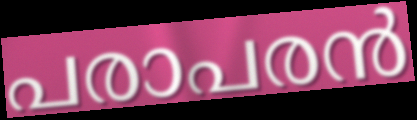
പരാപരൻ